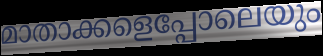
മാതാക്കളെപ്പോലെയും